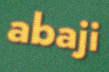
abaji